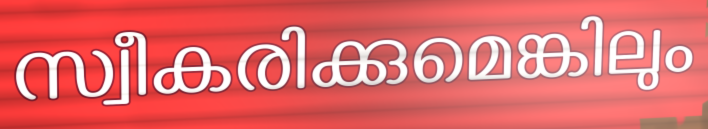
സ്വീകരിക്കുമെങ്കിലും